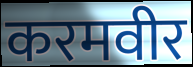
करमवीर